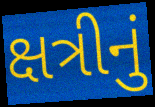
ક્ષત્રીનું